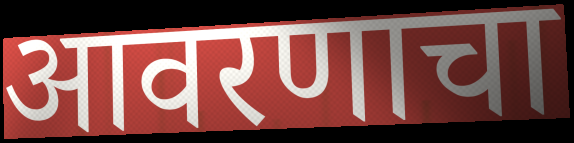
आवरणाचा